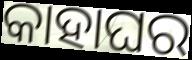
କାହାଘର